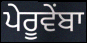
ਪੇਰੂਵੇਂਬਾ